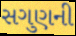
સગુણની